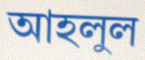
আহলুল